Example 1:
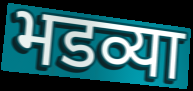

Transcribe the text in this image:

भडव्या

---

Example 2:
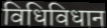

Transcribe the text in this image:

विधिविधान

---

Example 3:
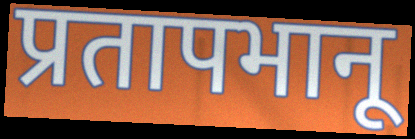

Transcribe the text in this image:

प्रतापभानू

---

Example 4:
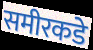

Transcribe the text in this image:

समीरकडे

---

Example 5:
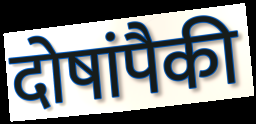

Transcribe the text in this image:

दोषांपैकी